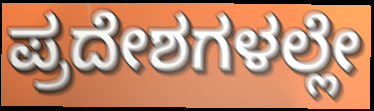
ಪ್ರದೇಶಗಳಲ್ಲೇ